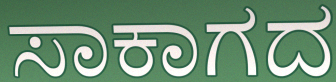
ಸಾಕಾಗದ